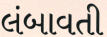
લંબાવતી